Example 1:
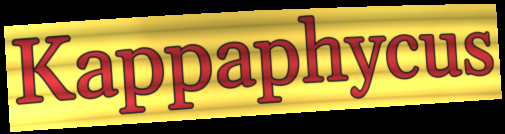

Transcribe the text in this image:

Kappaphycus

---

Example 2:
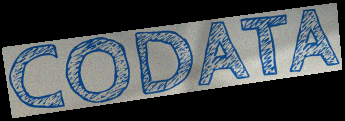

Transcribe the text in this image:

CODATA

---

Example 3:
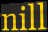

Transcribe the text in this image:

nill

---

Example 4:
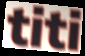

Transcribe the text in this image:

titi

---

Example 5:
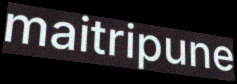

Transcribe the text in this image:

maitripune